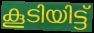
കൂടിയിട്ട്